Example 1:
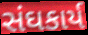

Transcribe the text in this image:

સંઘકાર્ય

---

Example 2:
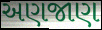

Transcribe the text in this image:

અણજાણ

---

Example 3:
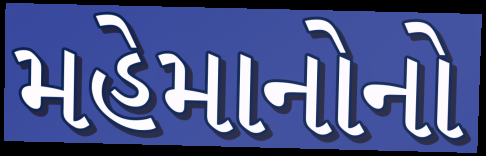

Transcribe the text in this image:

મહેમાનોનો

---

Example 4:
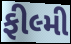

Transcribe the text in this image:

ફીલ્મી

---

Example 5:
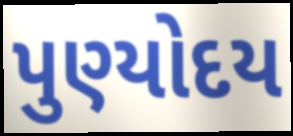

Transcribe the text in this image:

પુણ્યોદય